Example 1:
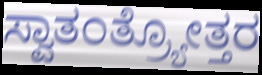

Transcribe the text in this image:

ಸ್ವಾತಂತ್ರ್ಯೋತ್ತರ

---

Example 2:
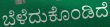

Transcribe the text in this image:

ಬೆಳೆದುಕೊಂಡಿದೆ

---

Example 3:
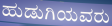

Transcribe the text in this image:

ಹುಡುಗಿಯವರು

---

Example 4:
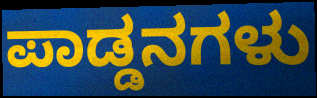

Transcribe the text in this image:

ಪಾಡ್ಡನಗಳು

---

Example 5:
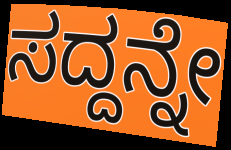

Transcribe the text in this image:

ಸದ್ದನ್ನೇ